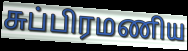
சுப்பிரமணிய